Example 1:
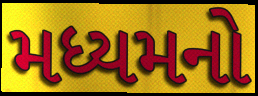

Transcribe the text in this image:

મધ્યમનો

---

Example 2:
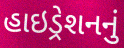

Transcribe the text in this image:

હાઇડ્રેશનનું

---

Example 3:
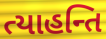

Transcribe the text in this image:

ત્યાહન્તિ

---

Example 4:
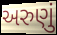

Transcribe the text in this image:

અરુણું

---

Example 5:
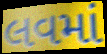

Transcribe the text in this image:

લવમાં